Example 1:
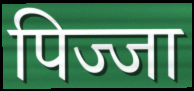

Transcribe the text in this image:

पिज्जा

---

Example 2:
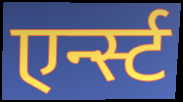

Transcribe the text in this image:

एर्न्स्ट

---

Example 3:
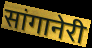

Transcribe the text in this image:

सांगानेरी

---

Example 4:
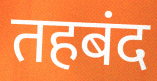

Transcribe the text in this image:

तहबंद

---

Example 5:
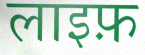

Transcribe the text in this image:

लाइफ़